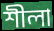
শীলা